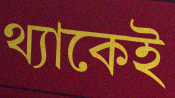
থ্যাকেই